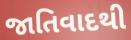
જાતિવાદથી